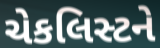
ચેકલિસ્ટને